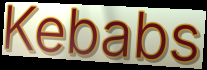
Kebabs